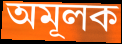
অমূলক